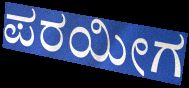
ಪರಯೀಗ